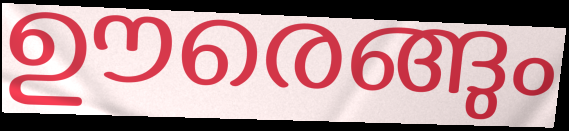
ഊരെങ്ങും